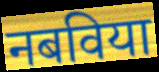
नबविया